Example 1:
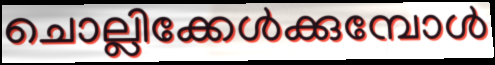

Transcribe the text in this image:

ചൊല്ലിക്കേൾക്കുമ്പോൾ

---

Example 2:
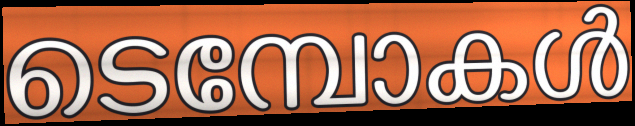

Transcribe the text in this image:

ടെമ്പോകൾ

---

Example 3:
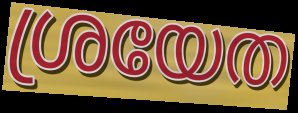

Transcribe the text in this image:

ശ്രയേത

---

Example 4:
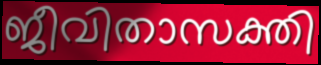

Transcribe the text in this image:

ജീവിതാസക്തി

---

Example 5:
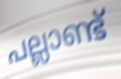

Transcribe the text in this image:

പല്ലാണ്ട്